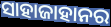
ସାହାଜାହାନର